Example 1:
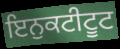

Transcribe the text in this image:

ਇਨੁਕਟੀਟੂਟ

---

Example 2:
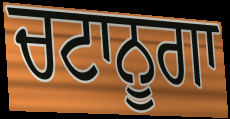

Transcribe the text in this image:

ਚਟਾਨੂਗਾ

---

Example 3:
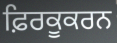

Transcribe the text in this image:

ਫ਼ਿਰਕੂਕਰਨ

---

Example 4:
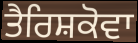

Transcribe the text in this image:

ਤੈਰਿਸ਼ਕੋਵਾ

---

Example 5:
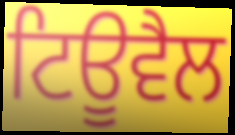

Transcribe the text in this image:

ਟਿਊਵੈਲ